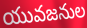
యువజనుల